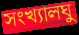
সংখ্যালঘু